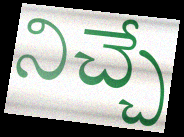
నిచ్చే